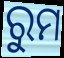
ରୁମ